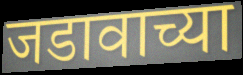
जडावाच्या